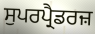
ਸੁਪਰਪ੍ਰੈਡਰਜ਼